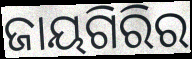
ଜାୟଗିରିର